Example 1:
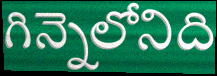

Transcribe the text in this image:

గిన్నెలోనిది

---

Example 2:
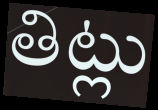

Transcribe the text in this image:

తిట్లు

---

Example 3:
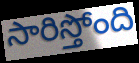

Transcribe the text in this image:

సారిస్తోంది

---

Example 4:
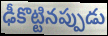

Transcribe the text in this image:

ఢీకొట్టినప్పుడు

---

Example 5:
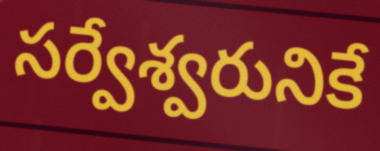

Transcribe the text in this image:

సర్వేశ్వరునికే